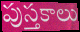
పుస్తకాలు